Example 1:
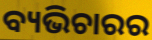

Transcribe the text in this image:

ବ୍ୟଭିଚାରର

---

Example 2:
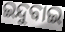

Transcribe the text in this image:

ଇନ୍ଦୁବାଇ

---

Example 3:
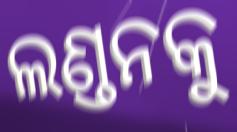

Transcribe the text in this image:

ଲଣ୍ଡନକୁ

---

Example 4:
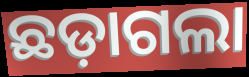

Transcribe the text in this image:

ଛଡ଼ାଗଲା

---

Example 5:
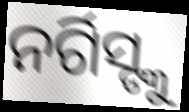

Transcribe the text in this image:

ନର୍ଗିସ୍ଙ୍କୁ